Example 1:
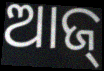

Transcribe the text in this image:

ଆଜ୍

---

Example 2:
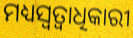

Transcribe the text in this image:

ମଧ୍ୟସ୍ୱତ୍ୱାଧିକାରୀ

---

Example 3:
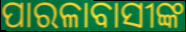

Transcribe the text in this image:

ପାରଳାବାସୀଙ୍କ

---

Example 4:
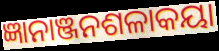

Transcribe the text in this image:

ଜ୍ଞାନାଞ୍ଜନଶଳାକୟା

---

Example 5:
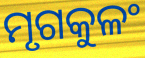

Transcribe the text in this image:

ମୃଗକୁଳଂ